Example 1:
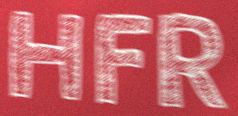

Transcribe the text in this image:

HFR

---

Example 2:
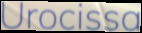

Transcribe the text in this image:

Urocissa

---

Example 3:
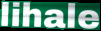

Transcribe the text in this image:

lihale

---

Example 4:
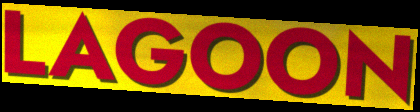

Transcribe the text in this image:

LAGOON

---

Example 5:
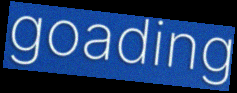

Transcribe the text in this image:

goading